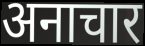
अनाचार